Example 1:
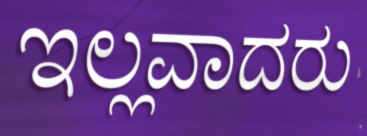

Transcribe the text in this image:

ಇಲ್ಲವಾದರು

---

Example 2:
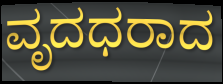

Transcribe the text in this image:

ವೃದಧರಾದ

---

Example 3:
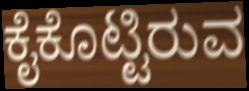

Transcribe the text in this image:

ಕೈಕೊಟ್ಟಿರುವ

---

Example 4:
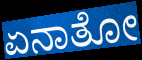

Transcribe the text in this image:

ಏನಾತೋ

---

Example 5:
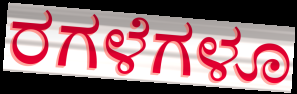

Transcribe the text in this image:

ರಗಳೆಗಳೂ